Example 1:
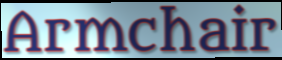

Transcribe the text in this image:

Armchair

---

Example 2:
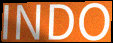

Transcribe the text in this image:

INDO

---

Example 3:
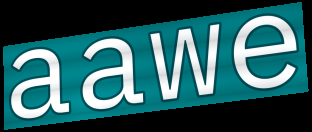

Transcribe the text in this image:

aawe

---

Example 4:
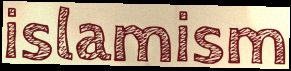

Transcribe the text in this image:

islamism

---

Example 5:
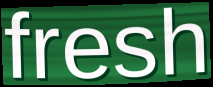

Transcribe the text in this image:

fresh